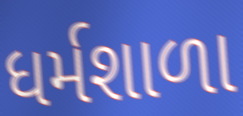
ધર્મશાળા